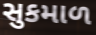
સુકમાળ